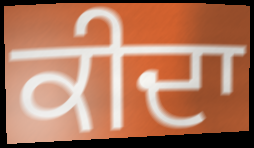
ਕੀਦਾ